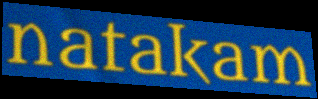
natakam